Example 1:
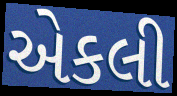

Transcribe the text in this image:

એકલી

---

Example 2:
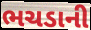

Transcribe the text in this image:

ભચડાની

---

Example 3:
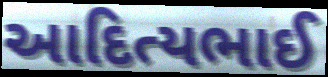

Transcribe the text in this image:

આદિત્યભાઈ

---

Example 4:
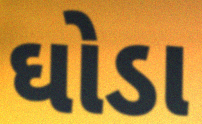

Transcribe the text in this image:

ઘોડા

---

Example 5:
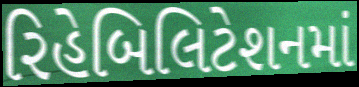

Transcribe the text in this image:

રિહેબિલિટેશનમાં